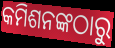
କମିଶନଙ୍କଠାରୁ